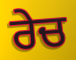
ਰੇਚ